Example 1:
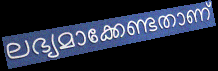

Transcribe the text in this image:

ലഭ്യമാക്കേണ്ടതാണ്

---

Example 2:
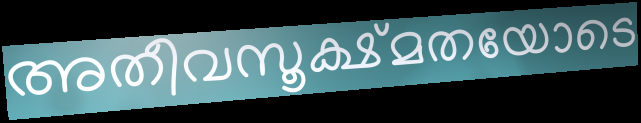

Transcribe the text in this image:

അതീവസൂക്ഷ്മതയോടെ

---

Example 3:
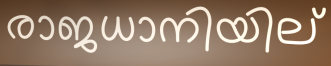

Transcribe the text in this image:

രാജധാനിയില്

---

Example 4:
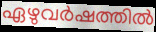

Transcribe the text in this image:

ഏഴുവർഷത്തിൽ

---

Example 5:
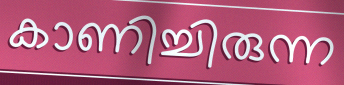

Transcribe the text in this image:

കാണിച്ചിരുന്ന